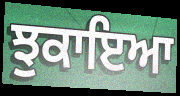
ਝੁਕਾਇਆ